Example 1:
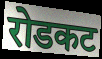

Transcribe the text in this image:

रोडकट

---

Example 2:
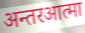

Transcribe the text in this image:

अन्तरआत्मा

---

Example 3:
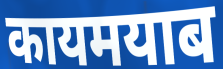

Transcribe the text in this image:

कायमयाब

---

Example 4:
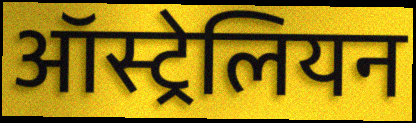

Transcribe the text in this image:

ऑस्ट्रेलियन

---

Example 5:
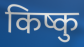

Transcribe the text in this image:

किष्कु